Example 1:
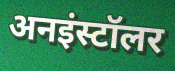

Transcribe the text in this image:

अनइंस्टॉलर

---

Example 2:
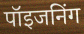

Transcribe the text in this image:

पॉइजनिंग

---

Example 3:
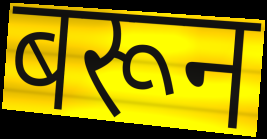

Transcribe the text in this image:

बरून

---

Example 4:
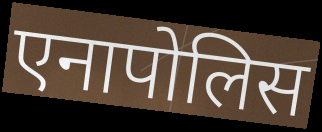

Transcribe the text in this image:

एनापोलिस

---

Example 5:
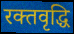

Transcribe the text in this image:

रक्तवृद्धि